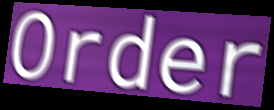
Order